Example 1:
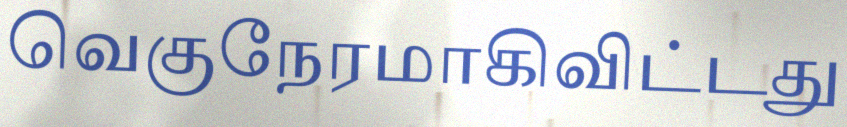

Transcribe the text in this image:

வெகுநேரமாகிவிட்டது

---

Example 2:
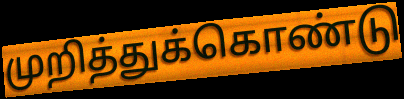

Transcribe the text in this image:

முறித்துக்கொண்டு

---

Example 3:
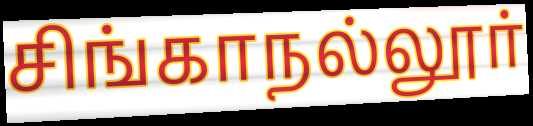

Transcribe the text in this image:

சிங்காநல்லூர்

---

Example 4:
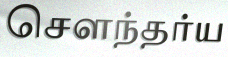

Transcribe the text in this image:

செளந்தர்ய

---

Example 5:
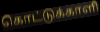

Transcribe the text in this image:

கொட்டுக்காளி